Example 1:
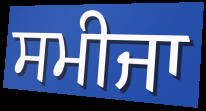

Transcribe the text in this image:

ਸਮੀਜਾ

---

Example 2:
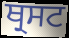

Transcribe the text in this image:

ਥ੍ਰਸਟ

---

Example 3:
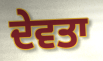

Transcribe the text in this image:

ਦੇਵਤਾ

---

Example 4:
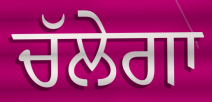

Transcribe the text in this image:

ਚੱਲੇਗਾ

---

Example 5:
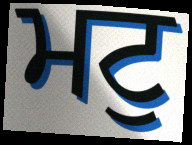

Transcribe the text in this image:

ਮਟੁ